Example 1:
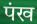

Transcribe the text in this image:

पंख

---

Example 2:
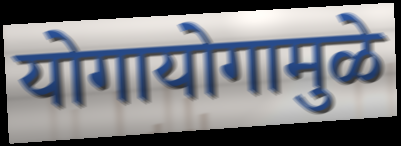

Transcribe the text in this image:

योगायोगामुळे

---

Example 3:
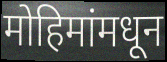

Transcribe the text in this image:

मोहिमांमधून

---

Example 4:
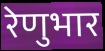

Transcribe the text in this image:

रेणुभार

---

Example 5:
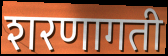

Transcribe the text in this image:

शरणागती